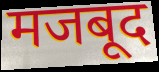
मजबूद